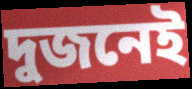
দুজনেই